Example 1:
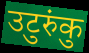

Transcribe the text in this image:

उटुरुंकु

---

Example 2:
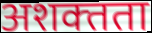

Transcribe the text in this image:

अशक्‍तता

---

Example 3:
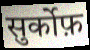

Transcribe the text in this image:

सुर्कोफ़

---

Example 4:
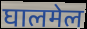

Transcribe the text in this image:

घालमेल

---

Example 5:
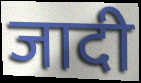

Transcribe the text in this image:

जादी